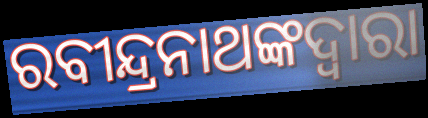
ରବୀନ୍ଦ୍ରନାଥଙ୍କଦ୍ୱାରା